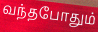
வந்தபோதும்